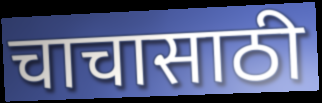
चाचासाठी